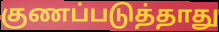
குணப்படுத்தாது